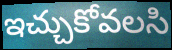
ఇచ్చుకోవలసి